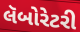
લૅબોરેટરી